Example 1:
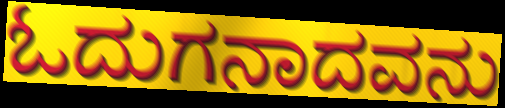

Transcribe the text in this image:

ಓದುಗನಾದವನು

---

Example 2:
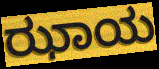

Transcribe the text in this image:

ಝಾಯ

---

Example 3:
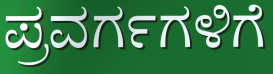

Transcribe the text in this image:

ಪ್ರವರ್ಗಗಳಿಗೆ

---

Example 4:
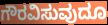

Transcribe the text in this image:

ಗೌರವಿಸುವುದೂ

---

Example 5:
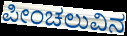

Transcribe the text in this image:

ಪೀಂಚಲುವಿನ